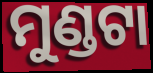
ମୁଣ୍ଡଟା